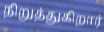
நிறுத்துகிறார்